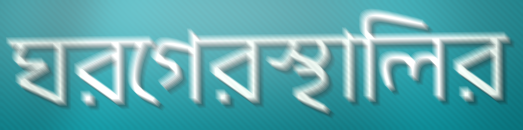
ঘরগেরস্থালির